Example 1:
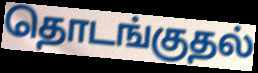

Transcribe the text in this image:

தொடங்குதல்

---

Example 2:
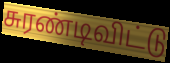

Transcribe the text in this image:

சுரண்டிவிட்டு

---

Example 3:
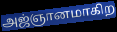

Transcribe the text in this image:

அஜ்ஞானமாகிற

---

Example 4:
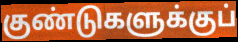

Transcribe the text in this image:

குண்டுகளுக்குப்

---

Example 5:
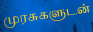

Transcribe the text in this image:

முரசுகளுடன்